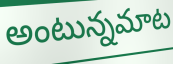
అంటున్నమాట